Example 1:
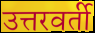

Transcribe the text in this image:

उत्तरवर्ती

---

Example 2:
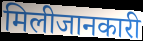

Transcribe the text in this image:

मिलीजानकारी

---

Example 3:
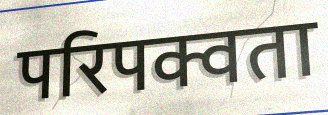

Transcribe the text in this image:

परिपक्वता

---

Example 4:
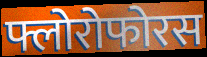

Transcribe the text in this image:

फ्लोरोफोरस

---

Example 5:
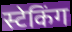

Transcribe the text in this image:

स्टेकिंग